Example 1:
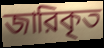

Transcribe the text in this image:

জারিকৃত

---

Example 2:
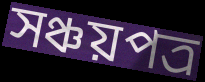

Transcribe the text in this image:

সঞ্চয়পত্র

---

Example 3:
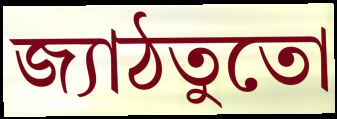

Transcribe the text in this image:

জ্যাঠতুতো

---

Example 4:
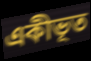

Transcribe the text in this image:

একীভূত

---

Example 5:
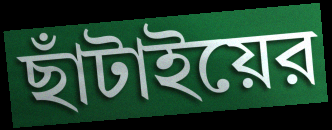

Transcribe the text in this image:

ছাঁটাইয়ের